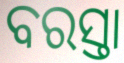
ବରସ୍ତା